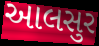
આલસુર